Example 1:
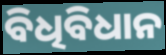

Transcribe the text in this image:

ବିଧିବିଧାନ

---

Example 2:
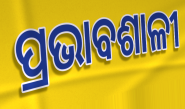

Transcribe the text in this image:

ପ୍ରଭାବଶାଳୀ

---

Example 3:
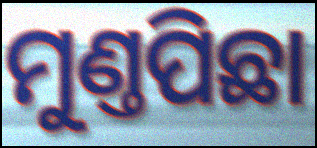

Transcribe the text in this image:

ମୁଣ୍ତପିଛା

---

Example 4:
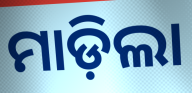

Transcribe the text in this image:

ମାଡ଼ିଲା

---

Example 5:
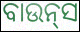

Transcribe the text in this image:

ବାଉନ୍‌ସ